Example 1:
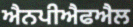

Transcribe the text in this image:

ਐਨਪੀਐਫਐਲ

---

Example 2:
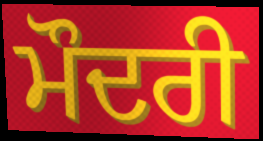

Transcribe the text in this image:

ਮੌਦਰੀ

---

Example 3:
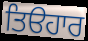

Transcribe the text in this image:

ਤਿੳਹਾਰ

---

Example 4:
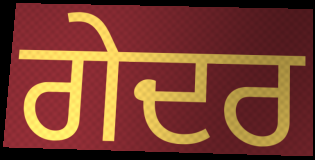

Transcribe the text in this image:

ਗੇਦਰ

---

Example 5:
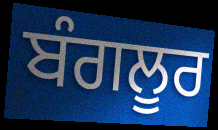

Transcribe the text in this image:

ਬੰਗਲੂਰ